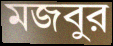
মজবুর